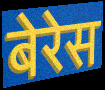
बेरेस